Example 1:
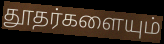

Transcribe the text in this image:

தூதர்களையும்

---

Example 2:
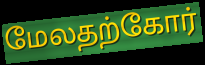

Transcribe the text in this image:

மேலதற்கோர்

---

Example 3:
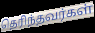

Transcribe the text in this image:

தெரிந்தவர்கள்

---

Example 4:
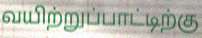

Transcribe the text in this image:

வயிற்றுப்பாட்டிற்கு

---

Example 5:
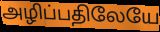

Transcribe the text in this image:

அழிப்பதிலேயே